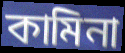
কামিনা